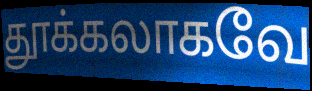
தூக்கலாகவே